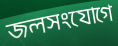
জলসংযোগে